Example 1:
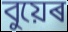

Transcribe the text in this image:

বুয়েৰ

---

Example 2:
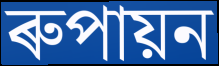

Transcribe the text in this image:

ৰুপায়ন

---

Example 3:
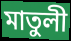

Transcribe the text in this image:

মাতুলী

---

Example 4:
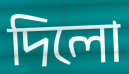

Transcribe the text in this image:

দিলো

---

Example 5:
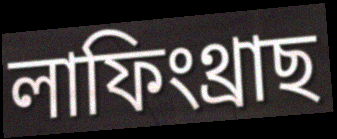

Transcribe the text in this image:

লাফিংথ্ৰাছ